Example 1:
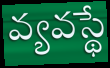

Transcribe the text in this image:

వ్యవస్థే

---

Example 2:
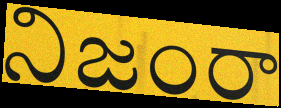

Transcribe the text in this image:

నిజంరా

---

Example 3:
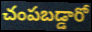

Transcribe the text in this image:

చంపబడ్డారో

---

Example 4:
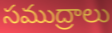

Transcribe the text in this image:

సముద్రాలు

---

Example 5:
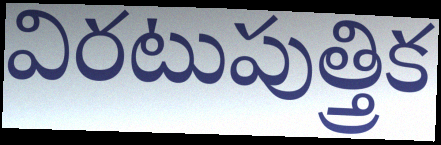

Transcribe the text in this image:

విరటుపుత్త్రిక